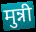
मुन्नी